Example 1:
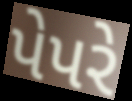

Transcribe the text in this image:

પેપરે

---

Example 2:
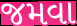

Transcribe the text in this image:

જમવા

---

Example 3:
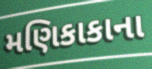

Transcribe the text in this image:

મણિકાકાના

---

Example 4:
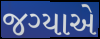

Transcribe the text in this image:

જગ્યાએ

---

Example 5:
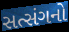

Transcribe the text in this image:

સત્સંગનો